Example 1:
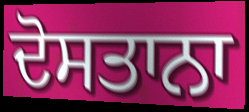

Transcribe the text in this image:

ਦੋਸਤਾਨਾ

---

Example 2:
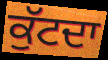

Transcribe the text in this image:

ਕੁੱਟਦਾ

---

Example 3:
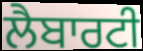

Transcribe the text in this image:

ਲੈਬਾਰਟੀ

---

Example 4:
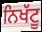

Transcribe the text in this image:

ਨਿਖੱਟੂ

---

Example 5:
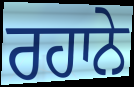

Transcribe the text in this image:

ਰਹਾਨੇ